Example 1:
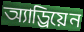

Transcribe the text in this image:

অ্যাড্রিয়েন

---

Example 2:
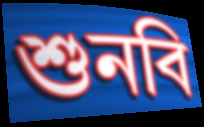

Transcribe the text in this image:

শুনবি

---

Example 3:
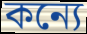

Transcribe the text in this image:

কন্যে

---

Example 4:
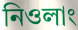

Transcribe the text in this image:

নিওলাং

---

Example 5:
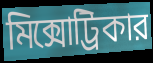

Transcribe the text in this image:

মিক্সোট্রিকার